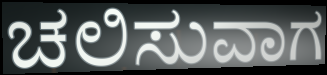
ಚಲಿಸುವಾಗ